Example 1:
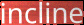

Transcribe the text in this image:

incline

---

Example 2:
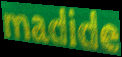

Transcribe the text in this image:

madide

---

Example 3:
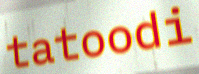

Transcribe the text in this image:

tatoodi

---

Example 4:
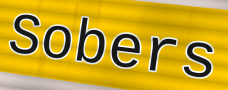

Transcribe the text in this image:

Sobers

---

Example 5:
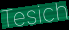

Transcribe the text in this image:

Tesich